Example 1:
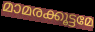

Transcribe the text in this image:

മാമരക്കൂട്ടമേ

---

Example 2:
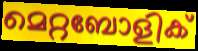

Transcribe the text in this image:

മെറ്റബോളിക്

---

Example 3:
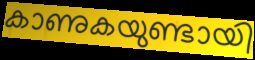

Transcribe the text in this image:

കാണുകയുണ്ടായി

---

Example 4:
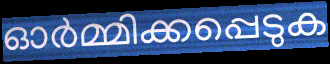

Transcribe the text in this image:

ഓർമ്മിക്കപ്പെടുക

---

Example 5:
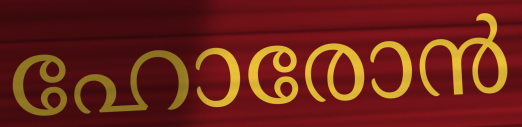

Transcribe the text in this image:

ഹോരോൻ